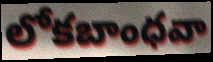
లోకబాంధవా